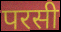
परसी